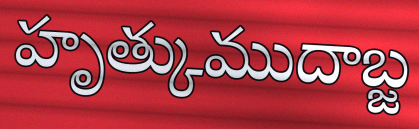
హృత్కుముదాబ్జ